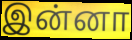
இன்னா